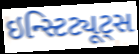
ઇન્સ્ટિટ્યૂટ્સ